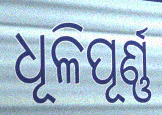
ଧୂଳିପୂର୍ଣ୍ଣ